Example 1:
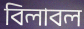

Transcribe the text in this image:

বিলাবল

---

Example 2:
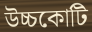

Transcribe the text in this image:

উচ্চকোটি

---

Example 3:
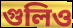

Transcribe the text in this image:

গুলিও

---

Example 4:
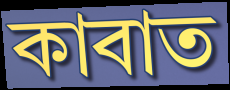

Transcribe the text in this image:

কাবাত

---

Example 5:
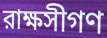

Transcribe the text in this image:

রাক্ষসীগণ